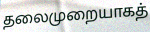
தலைமுறையாகத்